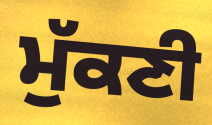
ਮੁੱਕਣੀ